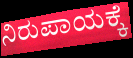
ನಿರುಪಾಯಕ್ಕೆ